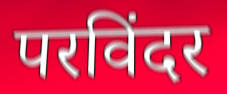
परविंदर